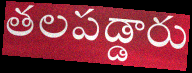
తలపడ్డారు